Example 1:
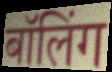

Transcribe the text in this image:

बॉलिंग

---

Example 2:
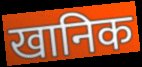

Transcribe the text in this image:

खानिक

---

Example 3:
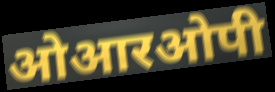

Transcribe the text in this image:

ओआरओपी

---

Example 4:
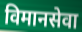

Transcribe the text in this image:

विमानसेवा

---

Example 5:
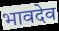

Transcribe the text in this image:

भावदेव